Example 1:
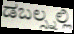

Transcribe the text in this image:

ಡಬಲ್ಸ್ನಲ್ಲಿ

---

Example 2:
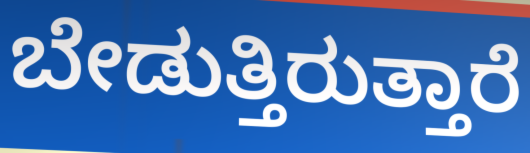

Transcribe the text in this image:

ಬೇಡುತ್ತಿರುತ್ತಾರೆ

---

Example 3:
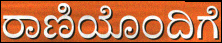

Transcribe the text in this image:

ರಾಣಿಯೊಂದಿಗೆ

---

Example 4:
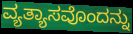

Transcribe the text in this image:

ವ್ಯತ್ಯಾಸವೊಂದನ್ನು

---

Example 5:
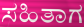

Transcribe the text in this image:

ಸಹಿತಾಗ